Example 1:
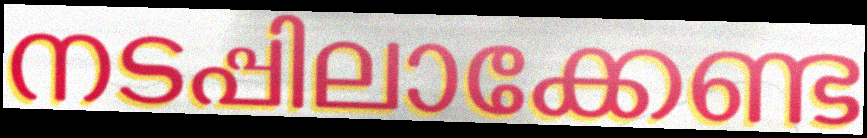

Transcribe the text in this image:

നടപ്പിലാക്കേണ്ട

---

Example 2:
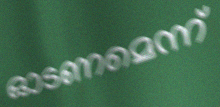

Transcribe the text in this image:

ഓടണമെന്ന്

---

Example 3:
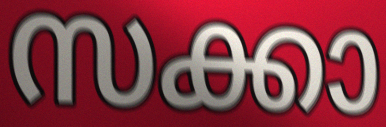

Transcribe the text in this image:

സക്കാ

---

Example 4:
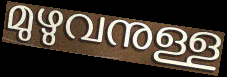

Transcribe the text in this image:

മുഴുവനുള്ള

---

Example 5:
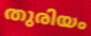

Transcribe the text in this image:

തുരിയം